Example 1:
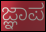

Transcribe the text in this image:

ಜ್ಞಾಪ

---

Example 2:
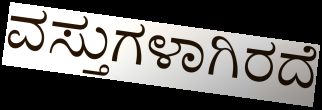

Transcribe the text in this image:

ವಸ್ತುಗಳಾಗಿರದೆ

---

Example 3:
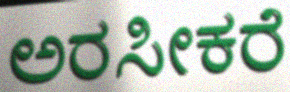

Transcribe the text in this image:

ಅರಸೀಕರೆ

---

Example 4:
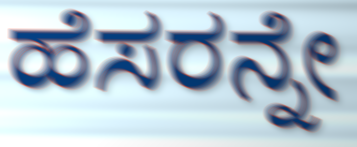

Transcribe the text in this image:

ಹೆಸರನ್ನೇ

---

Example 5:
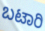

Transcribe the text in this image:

ಬಟಾರಿ